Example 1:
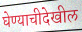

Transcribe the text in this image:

घेण्याचीदेखील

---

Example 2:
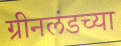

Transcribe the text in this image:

ग्रीनलंडच्या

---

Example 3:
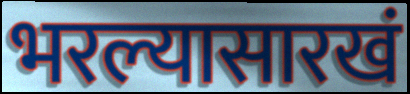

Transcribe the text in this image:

भरल्यासारखं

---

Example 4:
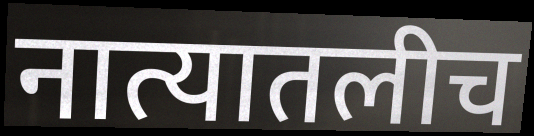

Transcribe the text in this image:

नात्यातलीच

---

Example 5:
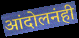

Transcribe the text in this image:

आंदोलनंही